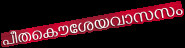
പീതകൌശേയവാസസം